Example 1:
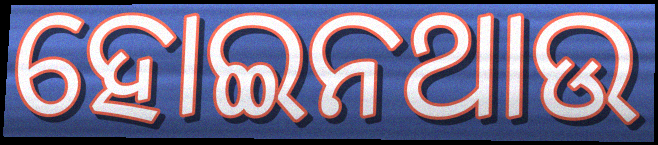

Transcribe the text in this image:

ହୋଇନଥାଉ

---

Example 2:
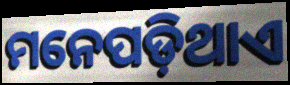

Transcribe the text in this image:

ମନେପଡ଼ିଥାଏ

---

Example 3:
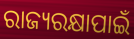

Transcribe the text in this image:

ରାଜ୍ୟରକ୍ଷାପାଇଁ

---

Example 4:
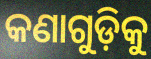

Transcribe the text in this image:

କଣାଗୁଡ଼ିକୁ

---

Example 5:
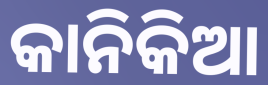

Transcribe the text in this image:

କାନିକିଆ